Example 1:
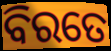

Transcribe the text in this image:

ବିରତେ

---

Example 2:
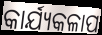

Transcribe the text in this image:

କାର୍ଯ୍ୟକଳାପ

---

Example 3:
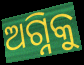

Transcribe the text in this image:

ଅଗ୍ନିକୁ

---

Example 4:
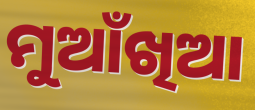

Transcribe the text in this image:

ମୁଆଁଖିଆ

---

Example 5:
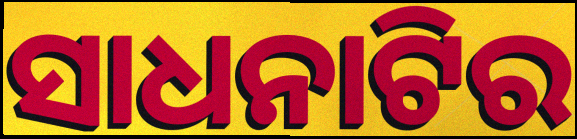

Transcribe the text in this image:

ସାଧନାଟିର